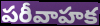
పరీవాహక